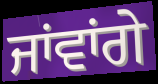
ਜਾਂਵਾਂਗੇ